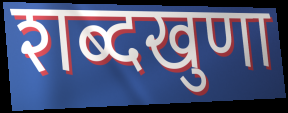
शब्दखुणा